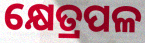
କ୍ଷେତ୍ରପଳ